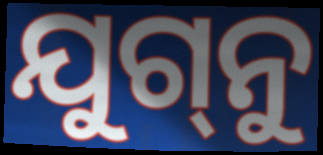
ଯୁଗ୍‌ନୁ